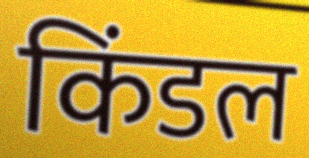
किंडल